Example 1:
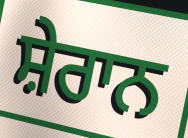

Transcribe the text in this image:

ਸ਼ੇਰਾਨ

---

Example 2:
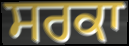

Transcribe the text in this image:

ਸਰਕਾ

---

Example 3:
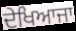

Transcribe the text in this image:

ਦੇਖਿਆਜਾ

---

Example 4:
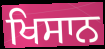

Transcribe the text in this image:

ਖਿਸਾਨ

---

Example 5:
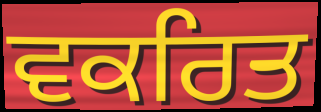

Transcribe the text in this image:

ਵਕਰਿਤ